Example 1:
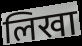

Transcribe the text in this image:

लिखा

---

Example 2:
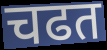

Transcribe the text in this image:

चढत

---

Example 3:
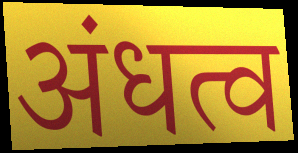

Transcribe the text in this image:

अंधत्व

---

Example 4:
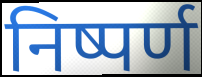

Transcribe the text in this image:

निष्पर्ण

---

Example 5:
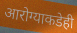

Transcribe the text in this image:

आरोग्याकडेही